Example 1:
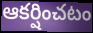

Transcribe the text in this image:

ఆకర్షించటం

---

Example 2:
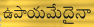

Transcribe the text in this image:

ఉపాయమేదైనా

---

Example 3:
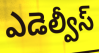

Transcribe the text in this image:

ఎడెల్వీస్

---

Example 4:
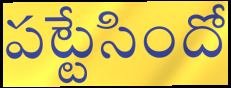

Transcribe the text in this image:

పట్టేసిందో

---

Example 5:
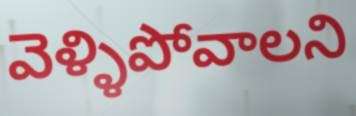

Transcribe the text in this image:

వెళ్ళిపోవాలని